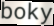
boky